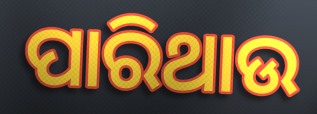
ପାରିଥାଉ